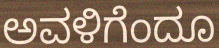
ಅವಳಿಗೆಂದೂ